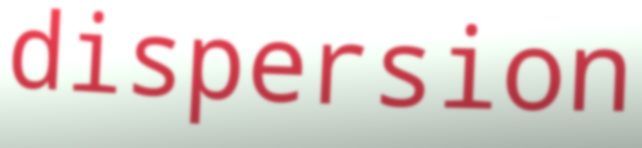
dispersion